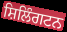
ਸ਼ਿਲਿੰਗਟਨ